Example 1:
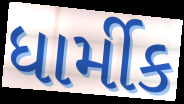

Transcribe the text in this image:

ધાર્મીક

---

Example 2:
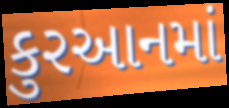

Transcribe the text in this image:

કુરઆનમાં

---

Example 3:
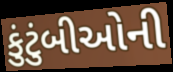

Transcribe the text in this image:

કુંટુંબીઓની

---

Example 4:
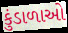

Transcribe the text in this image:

કુંડાળાઓ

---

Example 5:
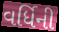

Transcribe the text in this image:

વર્ધિની